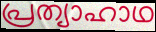
പ്രത്യാഹാഥ